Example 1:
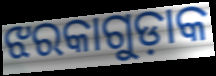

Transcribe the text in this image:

ଝରକାଗୁଡ଼ାକ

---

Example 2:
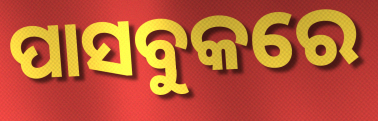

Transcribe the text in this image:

ପାସବୁକରେ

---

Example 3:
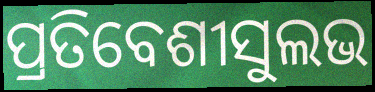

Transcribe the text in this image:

ପ୍ରତିବେଶୀସୁଲଭ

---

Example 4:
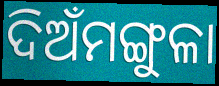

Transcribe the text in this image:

ଦିଅଁମଙ୍ଗୁଳା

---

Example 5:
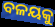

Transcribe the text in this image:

ବଳୟକୁ